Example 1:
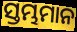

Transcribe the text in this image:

ସ୍ତମ୍ଭମାନ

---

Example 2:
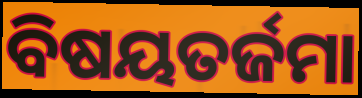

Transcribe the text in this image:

ବିଷୟତର୍ଜମା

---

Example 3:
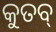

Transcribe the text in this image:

କୁତବ୍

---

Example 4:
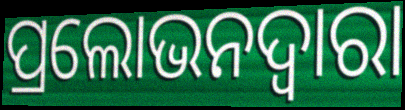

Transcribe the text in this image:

ପ୍ରଲୋଭନଦ୍ୱାରା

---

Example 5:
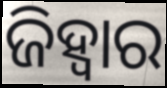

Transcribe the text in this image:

ଜିହ୍ଵାର